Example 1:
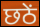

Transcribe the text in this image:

छठें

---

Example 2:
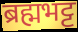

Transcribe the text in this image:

ब्रह्मभट्ट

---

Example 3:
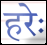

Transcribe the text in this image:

हरेः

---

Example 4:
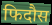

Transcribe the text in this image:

फिदौस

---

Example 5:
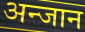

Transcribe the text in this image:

अन्जान